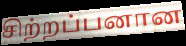
சிற்றப்பனான